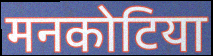
मनकोटिया